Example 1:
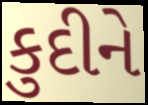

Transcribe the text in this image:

કુદીને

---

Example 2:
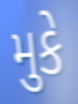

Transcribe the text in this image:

મુકે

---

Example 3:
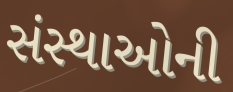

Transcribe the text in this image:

સંસ્થાઓની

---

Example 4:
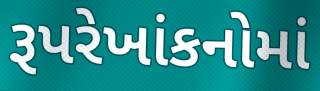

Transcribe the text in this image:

રૂપરેખાંકનોમાં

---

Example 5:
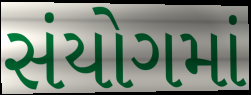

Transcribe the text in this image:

સંયોગમાં